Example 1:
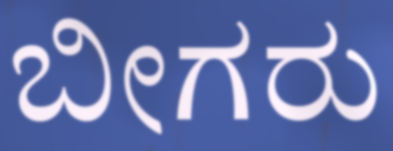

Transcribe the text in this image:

ಬೀಗರು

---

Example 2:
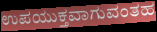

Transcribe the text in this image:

ಉಪಯುಕ್ತವಾಗುವಂತಹ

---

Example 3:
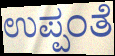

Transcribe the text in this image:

ಉಪ್ಪಂತೆ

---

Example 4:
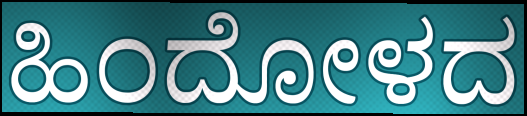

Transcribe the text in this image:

ಹಿಂದೋಳದ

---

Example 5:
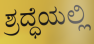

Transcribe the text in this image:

ಶ್ರದ್ಧೆಯಲ್ಲಿ